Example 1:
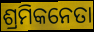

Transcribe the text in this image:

ଶ୍ରମିକନେତା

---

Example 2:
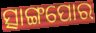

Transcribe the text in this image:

ତ୍ସାଙ୍ଗପୋର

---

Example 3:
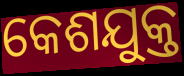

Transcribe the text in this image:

କେଶଯୁକ୍ତ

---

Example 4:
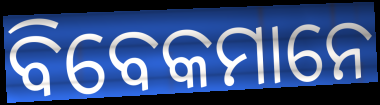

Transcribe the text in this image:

ବିବେକମାନେ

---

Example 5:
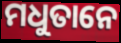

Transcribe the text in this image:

ମଧୁତାନେ